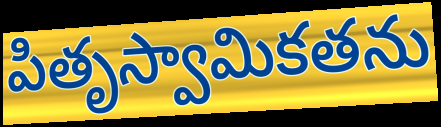
పితృస్వామికతను